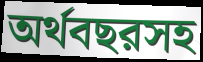
অর্থবছরসহ